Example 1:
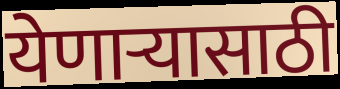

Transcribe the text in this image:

येणाऱ्यासाठी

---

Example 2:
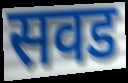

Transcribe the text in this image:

सवड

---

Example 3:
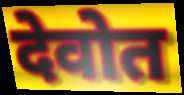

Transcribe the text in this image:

देवोत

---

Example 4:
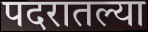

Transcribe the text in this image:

पदरातल्या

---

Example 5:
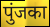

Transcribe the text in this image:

पुंजका